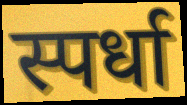
स्पर्धा